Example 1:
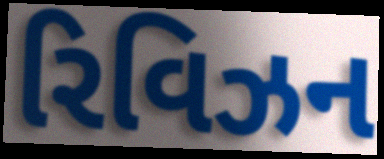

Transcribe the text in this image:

રિવિઝન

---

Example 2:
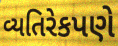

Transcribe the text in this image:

વ્યતિરેકપણે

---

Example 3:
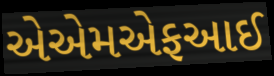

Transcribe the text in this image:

એએમએફઆઈ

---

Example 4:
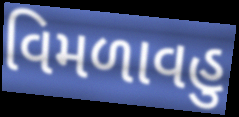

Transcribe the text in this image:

વિમળાવહુ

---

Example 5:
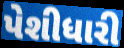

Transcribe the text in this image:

પેશીધારી